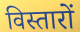
विस्तारों